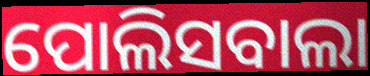
ପୋଲିସବାଲା